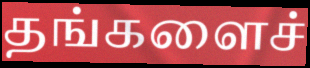
தங்களைச்